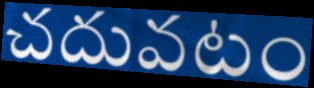
చదువటం